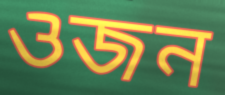
ওজন